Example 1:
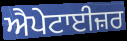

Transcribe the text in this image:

ਐਪੇਟਾਈਜ਼ਰ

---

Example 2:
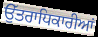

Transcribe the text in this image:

ਉੱਤਰਾਧਿਕਾਰੀਆਂ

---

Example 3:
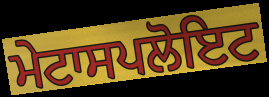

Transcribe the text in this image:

ਮੇਟਾਸਪਲੋਇਟ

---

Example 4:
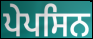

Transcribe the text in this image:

ਪੇਪਸਿਨ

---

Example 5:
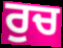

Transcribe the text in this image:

ਰੁਚ